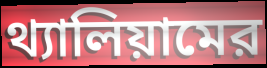
থ্যালিয়ামের